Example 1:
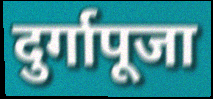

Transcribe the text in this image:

दुर्गापूजा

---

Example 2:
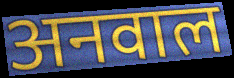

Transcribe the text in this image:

अनवाल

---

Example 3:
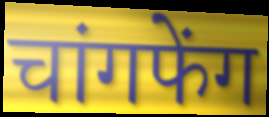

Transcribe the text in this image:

चांगफेंग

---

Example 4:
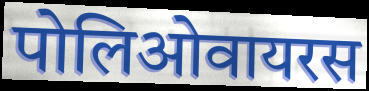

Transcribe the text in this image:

पोलिओवायरस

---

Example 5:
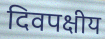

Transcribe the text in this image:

दिवपक्षीय